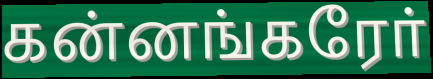
கன்னங்கரேர்